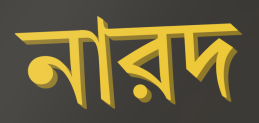
নারদ